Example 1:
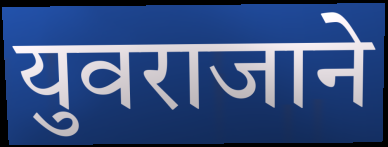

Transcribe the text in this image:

युवराजाने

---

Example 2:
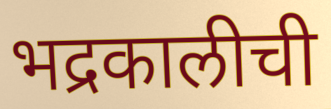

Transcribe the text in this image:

भद्रकालीची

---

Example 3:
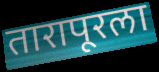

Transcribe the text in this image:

तारापूरला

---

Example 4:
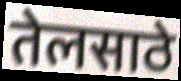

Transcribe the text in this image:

तेलसाठे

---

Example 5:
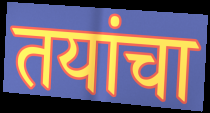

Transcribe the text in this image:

तयांचा